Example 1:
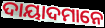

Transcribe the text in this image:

ଦାୟାଦମାନେ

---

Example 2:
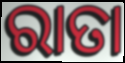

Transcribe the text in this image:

ରାତା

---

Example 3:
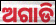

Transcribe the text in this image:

ଅଗାଡି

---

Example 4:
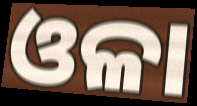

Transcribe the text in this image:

ଓଳା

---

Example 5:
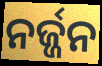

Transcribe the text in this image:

ନର୍ଜ୍ଜନ